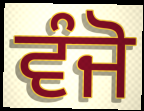
ਵੰਜੋ